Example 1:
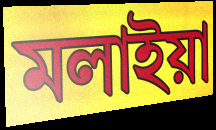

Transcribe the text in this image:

মলাইয়া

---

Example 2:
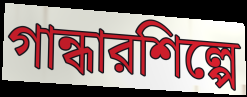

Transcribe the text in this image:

গান্ধারশিল্পে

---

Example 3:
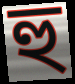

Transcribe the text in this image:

হু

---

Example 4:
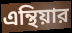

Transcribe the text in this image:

এন্থিয়ার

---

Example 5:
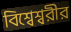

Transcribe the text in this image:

বিশ্বেশ্বরীর